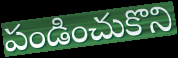
పండించుకొని